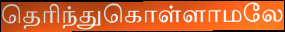
தெரிந்துகொள்ளாமலே